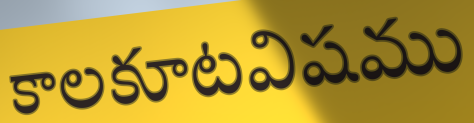
కాలకూటవిషము